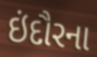
ઇંદૌરના